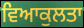
ਵਿਆਕੁਲਤਾ